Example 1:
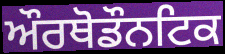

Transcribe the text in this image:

ਔਰਥੋਡੌਨਟਿਕ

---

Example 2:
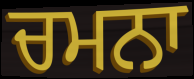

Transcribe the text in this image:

ਚਮਨਾ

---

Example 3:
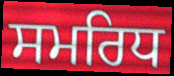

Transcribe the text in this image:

ਸਮਰਿਧ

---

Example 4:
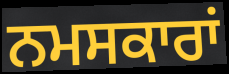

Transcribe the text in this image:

ਨਮਸਕਾਰਾਂ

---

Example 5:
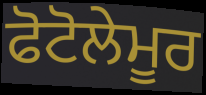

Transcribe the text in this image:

ਫੋਟੋਲੇਮੂਰ